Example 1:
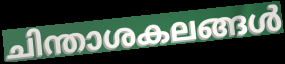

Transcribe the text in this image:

ചിന്താശകലങ്ങൾ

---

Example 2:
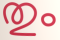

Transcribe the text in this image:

തും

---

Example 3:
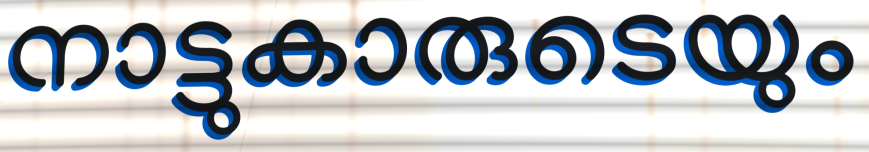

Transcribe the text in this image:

നാട്ടുകാരുടെയും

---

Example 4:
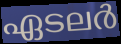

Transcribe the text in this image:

ഏടലർ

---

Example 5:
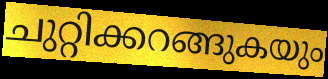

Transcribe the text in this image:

ചുറ്റിക്കറങ്ങുകയും